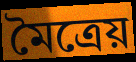
মৈত্রেয়